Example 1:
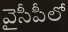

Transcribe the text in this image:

వైసీపీలో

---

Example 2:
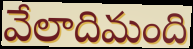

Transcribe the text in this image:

వేలాదిమంది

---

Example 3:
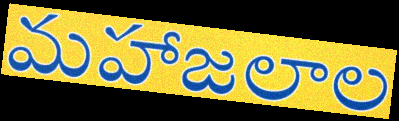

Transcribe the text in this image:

మహాజలాల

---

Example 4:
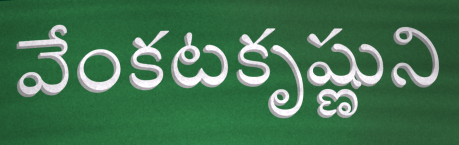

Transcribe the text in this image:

వేంకటకృష్ణుని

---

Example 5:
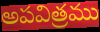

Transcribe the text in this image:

అపవిత్రము